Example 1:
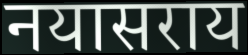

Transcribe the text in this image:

नयासराय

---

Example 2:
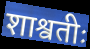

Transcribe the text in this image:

शाश्वतीः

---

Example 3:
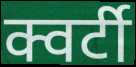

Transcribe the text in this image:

क्वर्टी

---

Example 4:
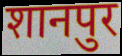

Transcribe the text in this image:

शानपुर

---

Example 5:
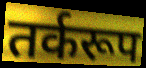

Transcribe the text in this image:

तर्करूप